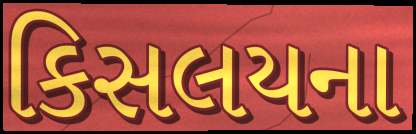
કિસલયના